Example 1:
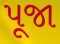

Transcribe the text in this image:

પૂજા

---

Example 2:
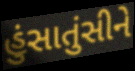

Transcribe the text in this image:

હુંસાતુંસીને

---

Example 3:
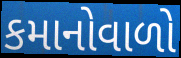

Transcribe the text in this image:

કમાનોવાળો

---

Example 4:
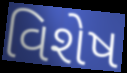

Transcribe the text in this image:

વિશેષ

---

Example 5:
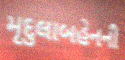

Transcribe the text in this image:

મૃદુલાબહેનની